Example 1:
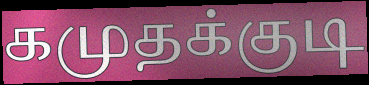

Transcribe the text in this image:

கமுதக்குடி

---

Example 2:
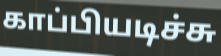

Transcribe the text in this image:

காப்பியடிச்சு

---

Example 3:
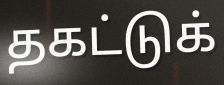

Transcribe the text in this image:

தகட்டுக்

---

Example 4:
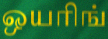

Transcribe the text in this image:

ஒயரிங்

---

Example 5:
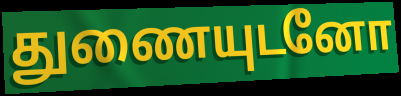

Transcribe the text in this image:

துணையுடனோ